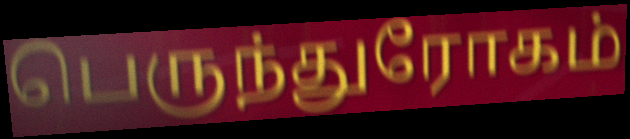
பெருந்துரோகம்